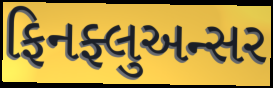
ફિનફ્લુઅન્સર